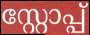
സ്റ്റോപ്പ്